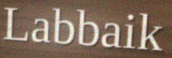
Labbaik